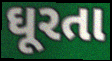
ઘૂરતા